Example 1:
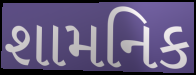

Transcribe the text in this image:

શામનિક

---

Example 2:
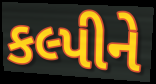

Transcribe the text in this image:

કલ્પીને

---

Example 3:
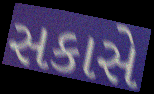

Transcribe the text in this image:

સકાસે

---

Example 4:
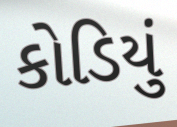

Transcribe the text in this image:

કોડિયું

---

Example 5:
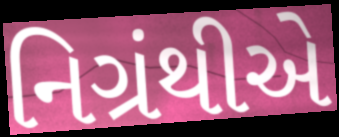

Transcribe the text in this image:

નિગ્રંથીએ